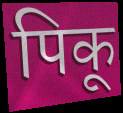
पिकू